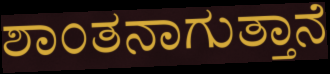
ಶಾಂತನಾಗುತ್ತಾನೆ